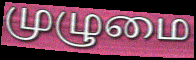
முழுமை